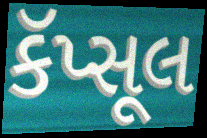
કૅપ્સૂલ